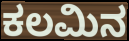
ಕಲಮಿನ